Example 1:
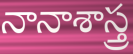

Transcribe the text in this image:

నానాశాస్త్ర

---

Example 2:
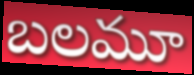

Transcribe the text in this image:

బలమూ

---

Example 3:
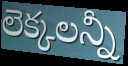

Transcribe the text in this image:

లెక్కలన్నీ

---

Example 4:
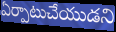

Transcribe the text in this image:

ఏర్పాటుచేయుడని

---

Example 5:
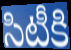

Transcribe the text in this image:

సిటీకి